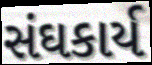
સંઘકાર્ય